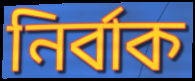
নির্বাক